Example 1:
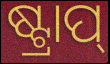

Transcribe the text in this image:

ଷ୍ଟ୍ରାପ୍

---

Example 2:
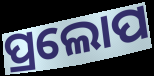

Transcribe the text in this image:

ପ୍ରଲୋପ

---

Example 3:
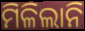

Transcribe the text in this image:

ମିଳିଲାନି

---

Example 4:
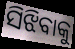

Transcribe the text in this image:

ସିଝିବାକୁ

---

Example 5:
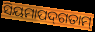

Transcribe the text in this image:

ସିୟମାପଦ୍‌ଗତାମ୍